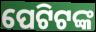
ପେଟିଟଙ୍କ